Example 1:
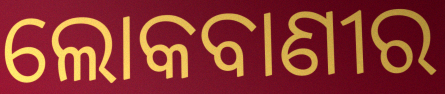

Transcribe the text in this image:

ଲୋକବାଣୀର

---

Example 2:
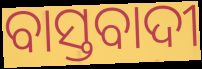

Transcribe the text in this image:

ବାସ୍ତବାଦୀ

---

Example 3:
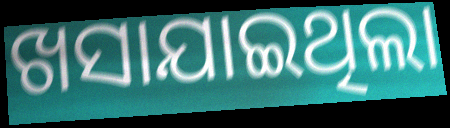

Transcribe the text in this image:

ଖସାଯାଇଥିଲା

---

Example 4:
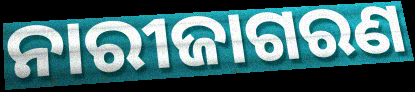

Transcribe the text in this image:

ନାରୀଜାଗରଣ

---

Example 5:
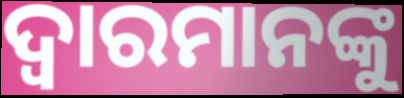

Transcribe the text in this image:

ଦ୍ୱାରମାନଙ୍କୁ